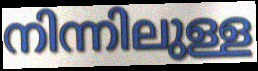
നിന്നിലുള്ള